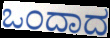
ಒಂದಾದ